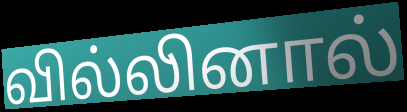
வில்லினால்